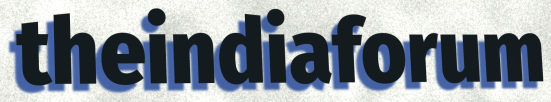
theindiaforum